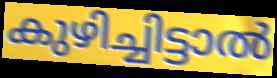
കുഴിച്ചിട്ടാൽ